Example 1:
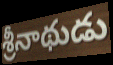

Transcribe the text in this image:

శ్రీనాథుడు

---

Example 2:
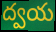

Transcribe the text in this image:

ద్వయ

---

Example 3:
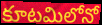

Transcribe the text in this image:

కూటమిలోనో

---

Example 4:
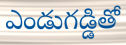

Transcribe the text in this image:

ఎండుగడ్డితో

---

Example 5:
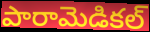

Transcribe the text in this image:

పారామెడికల్